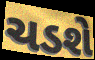
ચડશે